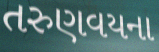
તરુણવયના